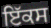
ਇੱਕਸ